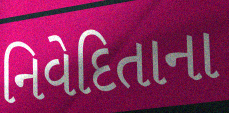
નિવેદિતાના